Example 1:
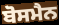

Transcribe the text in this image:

ਬੋਸਮੈਨ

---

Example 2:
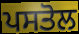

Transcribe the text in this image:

ਪਸਤੋਲ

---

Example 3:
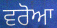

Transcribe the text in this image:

ਵਰੋਆ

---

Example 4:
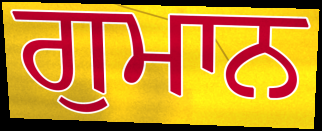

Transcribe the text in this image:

ਗੁਮਾਨ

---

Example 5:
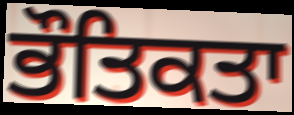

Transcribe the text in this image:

ਭੌਤਿਕਤਾ